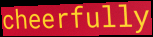
cheerfully